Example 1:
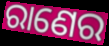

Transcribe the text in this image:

ରାଣେର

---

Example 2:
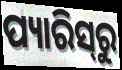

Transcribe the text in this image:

ପ୍ୟାରିସ୍‌ରୁ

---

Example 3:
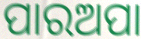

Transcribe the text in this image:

ପାରଅପା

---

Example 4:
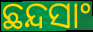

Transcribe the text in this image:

ଛନ୍ଦସାଂ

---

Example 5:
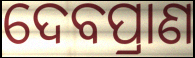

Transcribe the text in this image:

ଦେବପ୍ରାଣ